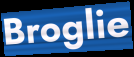
Broglie